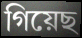
গিয়েছ